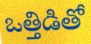
ఒత్తిడితో